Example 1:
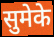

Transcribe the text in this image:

सुमेके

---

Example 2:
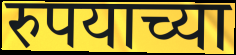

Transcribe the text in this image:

रुपयाच्या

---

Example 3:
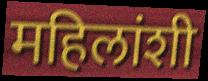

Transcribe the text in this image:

महिलांशी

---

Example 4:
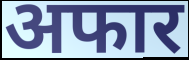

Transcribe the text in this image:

अफार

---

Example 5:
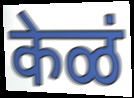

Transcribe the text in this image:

केळं